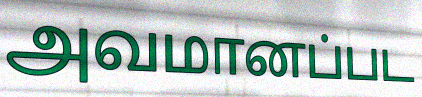
அவமானப்பட